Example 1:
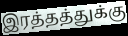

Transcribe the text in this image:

இரத்தத்துக்கு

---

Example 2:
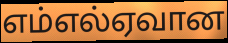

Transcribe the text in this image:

எம்எல்ஏவான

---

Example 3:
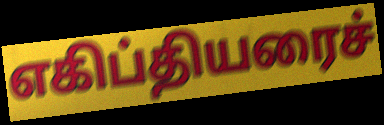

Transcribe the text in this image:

எகிப்தியரைச்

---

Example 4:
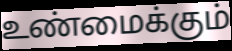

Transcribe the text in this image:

உண்மைக்கும்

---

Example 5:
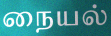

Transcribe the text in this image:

நையல்